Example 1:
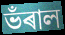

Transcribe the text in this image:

ভঁৰাল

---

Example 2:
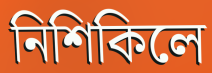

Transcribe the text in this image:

নিশিকিলে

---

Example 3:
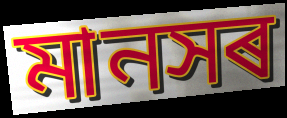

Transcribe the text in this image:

মানসৰ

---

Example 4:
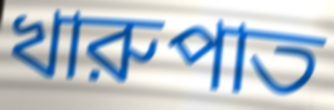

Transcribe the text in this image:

খাৰুপাত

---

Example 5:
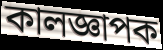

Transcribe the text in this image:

কালজ্ঞাপক